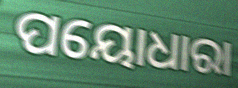
ପୟୋଧାରା